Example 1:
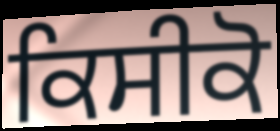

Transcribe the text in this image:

ਕਿਸੀਕੋ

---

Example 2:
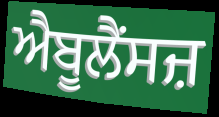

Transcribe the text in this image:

ਐਬੂਲੈਂਸਜ਼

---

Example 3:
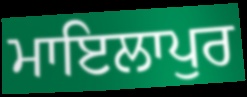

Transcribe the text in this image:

ਮਾਇਲਾਪੁਰ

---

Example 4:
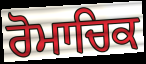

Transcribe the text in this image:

ਰੋਮਾਚਿਕ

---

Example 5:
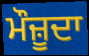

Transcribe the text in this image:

ਮੌਜ਼ੂਦਾ